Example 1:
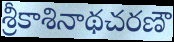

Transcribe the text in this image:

శ్రీకాశినాథచరణౌ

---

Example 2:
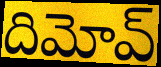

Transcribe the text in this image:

దిమోవ్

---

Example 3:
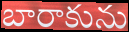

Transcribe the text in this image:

బారాకును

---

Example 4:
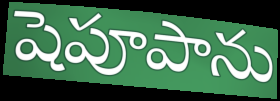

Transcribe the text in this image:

షెపూపాను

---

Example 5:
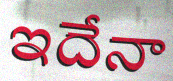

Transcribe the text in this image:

ఇదేనా